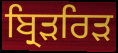
ਬ੍ਰਿੜਰਿੜ